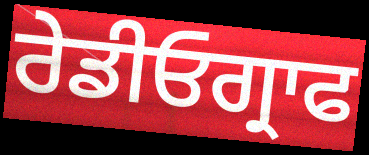
ਰੇਡੀਓਗ੍ਰਾਫ